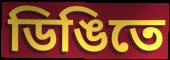
ডিঙিতে